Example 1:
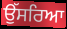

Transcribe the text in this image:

ਉੱਸਰਿਆ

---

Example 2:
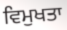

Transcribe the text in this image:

ਵਿਮੁਖਤਾ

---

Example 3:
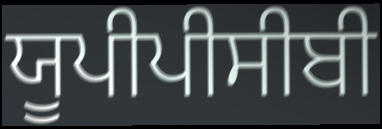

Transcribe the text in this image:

ਯੂਪੀਪੀਸੀਬੀ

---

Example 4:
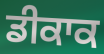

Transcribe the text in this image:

ਡੀਕਾਕ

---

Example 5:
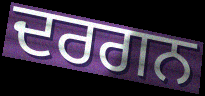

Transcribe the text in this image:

ਦਰਗਨ